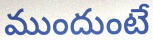
ముందుంటే